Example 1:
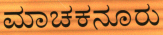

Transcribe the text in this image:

ಮಾಚಕನೂರು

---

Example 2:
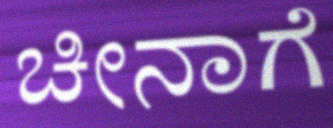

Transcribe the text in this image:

ಚೀನಾಗೆ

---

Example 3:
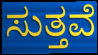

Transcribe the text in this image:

ಸುತ್ತವೆ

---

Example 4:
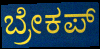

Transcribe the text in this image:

ಬ್ರೇಕಪ್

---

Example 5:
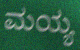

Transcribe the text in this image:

ಮಯ್ಯ